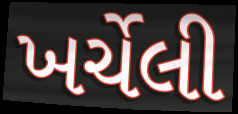
ખર્ચેલી